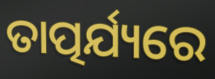
ତାତ୍ପର୍ଯ୍ୟରେ